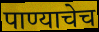
पाण्याचेच